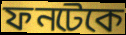
ফনটেকে